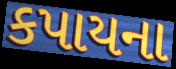
કપાયના